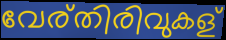
വേര്തിരിവുകള്